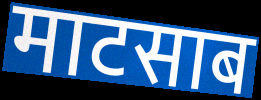
माटसाब